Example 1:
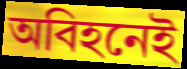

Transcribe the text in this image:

অবিহনেই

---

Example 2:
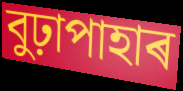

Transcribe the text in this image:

বুঢ়াপাহাৰ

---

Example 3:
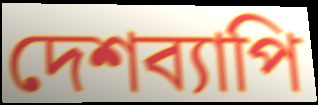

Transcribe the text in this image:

দেশব্যাপি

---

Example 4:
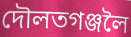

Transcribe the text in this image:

দৌলতগঞ্জলৈ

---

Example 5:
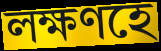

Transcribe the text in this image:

লক্ষণহে